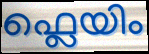
ഫ്ലെയിം